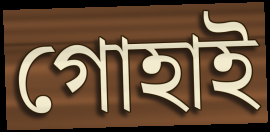
গোহাই